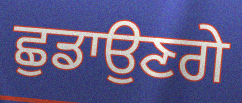
ਛੁਡਾਉਣਗੇ